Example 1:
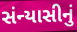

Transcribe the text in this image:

સંન્યાસીનું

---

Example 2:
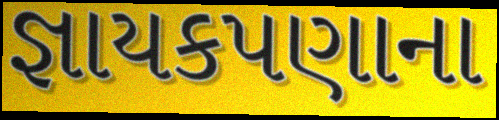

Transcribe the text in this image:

જ્ઞાયકપણાના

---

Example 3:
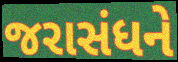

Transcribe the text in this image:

જરાસંધને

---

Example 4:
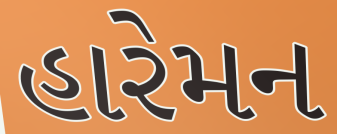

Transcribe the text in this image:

હારેમન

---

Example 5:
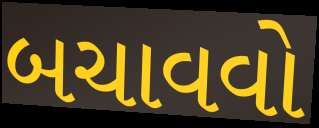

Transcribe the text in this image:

બચાવવો